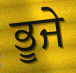
ਭੂਜੇ